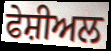
ਫੇਸ਼ੀਅਲ